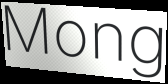
Mong